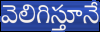
వెలిగిస్తూనే